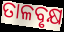
ତାଳବୃକ୍ଷ